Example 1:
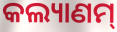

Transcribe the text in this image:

କଲ୍ୟାଣମ୍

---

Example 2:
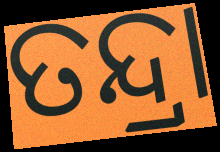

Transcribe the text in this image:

ତନ୍ଦ୍ରା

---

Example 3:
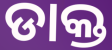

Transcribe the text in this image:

ଡାକ୍ତ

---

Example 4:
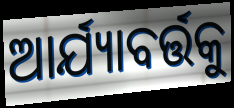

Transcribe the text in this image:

ଆର୍ଯ୍ୟାବର୍ତ୍ତକୁ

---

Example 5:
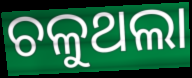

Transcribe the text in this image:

ଚଳୁଥଲା